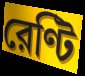
রেণ্টি